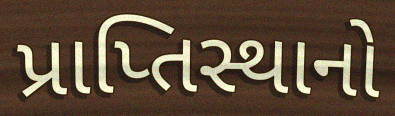
પ્રાપ્તિસ્થાનો